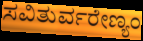
ಸವಿತುರ್ವರೇಣ್ಯಂ